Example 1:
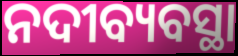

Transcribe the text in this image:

ନଦୀବ୍ୟବସ୍ଥା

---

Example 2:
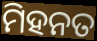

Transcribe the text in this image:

ମିହନତ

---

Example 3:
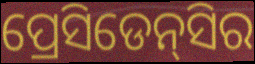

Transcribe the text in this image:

ପ୍ରେସିଡେନ୍‌ସିର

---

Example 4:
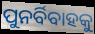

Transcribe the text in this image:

ପୁନର୍ବିବାହକୁ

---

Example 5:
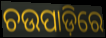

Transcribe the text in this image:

ଚଉପାଡ଼ିରେ